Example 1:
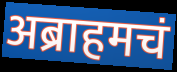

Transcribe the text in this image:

अब्राहमचं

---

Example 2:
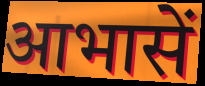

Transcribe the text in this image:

आभासें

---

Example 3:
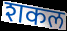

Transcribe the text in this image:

शकल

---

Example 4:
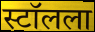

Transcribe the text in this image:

स्टॉलला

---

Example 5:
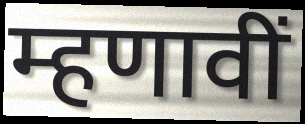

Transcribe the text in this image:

म्हणावीं